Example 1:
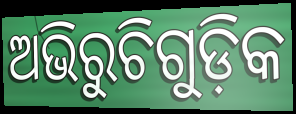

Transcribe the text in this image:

ଅଭିରୁଚିଗୁଡ଼ିକ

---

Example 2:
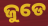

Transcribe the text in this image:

ଜୁଡେ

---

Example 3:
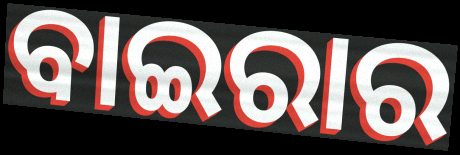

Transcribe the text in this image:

ବାଇରାର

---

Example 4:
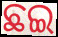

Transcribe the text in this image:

ଛଇ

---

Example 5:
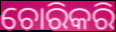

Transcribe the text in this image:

ଚୋରିକରି